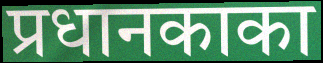
प्रधानकाका